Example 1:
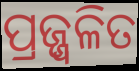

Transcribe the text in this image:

ପ୍ରଜ୍ଜ୍ବଳିତ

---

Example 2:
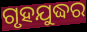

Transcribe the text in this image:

ଗୃହଯୁଦ୍ଧର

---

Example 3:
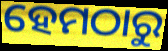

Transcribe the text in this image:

ହେମଠାରୁ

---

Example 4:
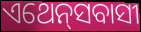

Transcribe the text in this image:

ଏଥେନ୍‌ସବାସୀ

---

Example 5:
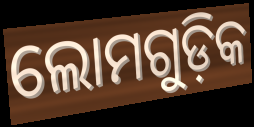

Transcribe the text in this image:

ଲୋମଗୁଡ଼ିକ